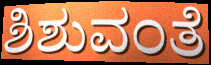
ಶಿಶುವಂತೆ